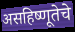
असहिष्णूतेचे